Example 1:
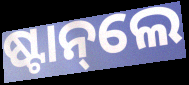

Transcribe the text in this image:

ଷ୍ଟାନ୍‌ଲେ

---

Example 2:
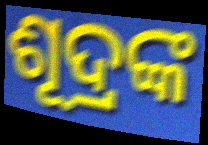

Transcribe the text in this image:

ଶୂଦ୍ରଙ୍କ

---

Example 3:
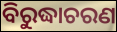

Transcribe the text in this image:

ବିରୁଦ୍ଧାଚରଣ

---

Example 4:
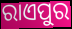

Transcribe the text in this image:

ରାଏପୁର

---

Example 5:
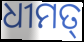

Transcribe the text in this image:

ଧୀମତ୍